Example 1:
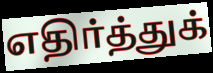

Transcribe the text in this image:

எதிர்த்துக்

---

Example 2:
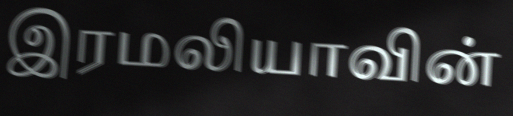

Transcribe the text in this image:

இரமலியாவின்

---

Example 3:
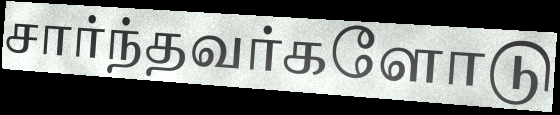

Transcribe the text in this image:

சார்ந்தவர்களோடு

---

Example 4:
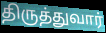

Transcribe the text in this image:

திருத்துவார்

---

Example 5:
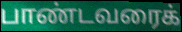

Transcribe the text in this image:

பாண்டவரைக்